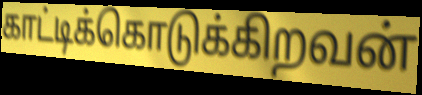
காட்டிக்கொடுக்கிறவன்